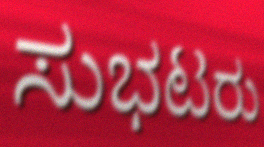
ಸುಭಟರು